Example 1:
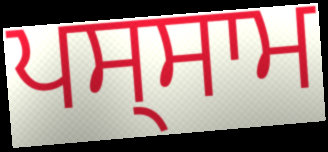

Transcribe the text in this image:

ਪਸ੍ਸਾਮ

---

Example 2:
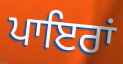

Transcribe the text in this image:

ਪਾਇਰਾਂ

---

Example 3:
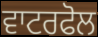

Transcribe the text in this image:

ਵਾਟਰਫੋਲ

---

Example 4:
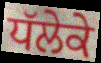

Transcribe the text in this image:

ਧੱਲੇਕੇ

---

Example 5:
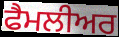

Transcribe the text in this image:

ਫੈਮਲੀਅਰ